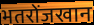
भतरोंजखान